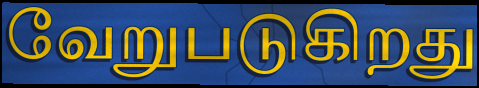
வேறுபடுகிறது